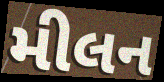
મીલન